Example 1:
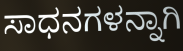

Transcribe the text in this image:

ಸಾಧನಗಳನ್ನಾಗಿ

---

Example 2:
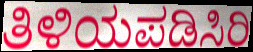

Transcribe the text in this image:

ತಿಳಿಯಪಡಿಸಿರಿ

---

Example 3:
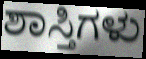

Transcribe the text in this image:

ಶಾಸ್ತಿಗಳು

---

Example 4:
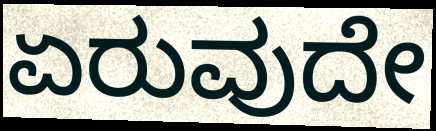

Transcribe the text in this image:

ಏರುವುದೇ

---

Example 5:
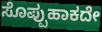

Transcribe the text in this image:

ಸೊಪ್ಪುಹಾಕದೇ